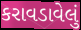
કરાવડાવેલું